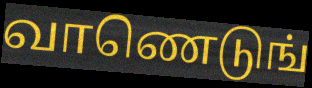
வாணெடுங்